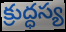
క్రుద్ధస్య